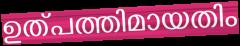
ഉത്പത്തിമായതിം